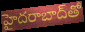
హైదరాబాద్‌తో